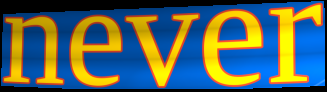
never